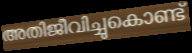
അതിജീവിച്ചുകൊണ്ട്